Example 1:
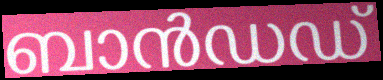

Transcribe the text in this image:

ബാൻഡഡ്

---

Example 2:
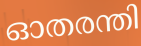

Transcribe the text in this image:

ഓതരന്തി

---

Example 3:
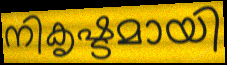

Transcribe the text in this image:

നികൃഷ്ടമായി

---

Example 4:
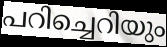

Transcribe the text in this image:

പറിച്ചെറിയും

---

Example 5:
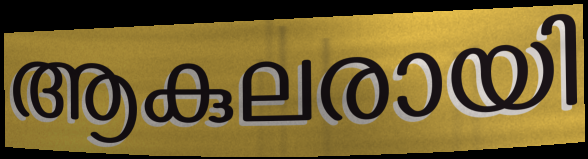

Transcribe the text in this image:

ആകുലരായി